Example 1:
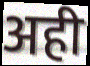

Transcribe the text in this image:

अही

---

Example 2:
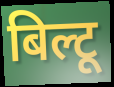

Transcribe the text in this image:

बिल्टू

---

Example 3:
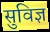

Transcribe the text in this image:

सुविज्ञ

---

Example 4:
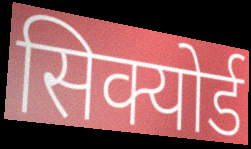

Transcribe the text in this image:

सिक्योर्ड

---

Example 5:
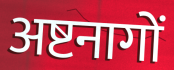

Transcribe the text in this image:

अष्टनागों